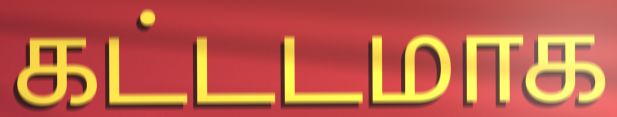
கட்டடமாக